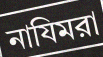
নাযিমরা